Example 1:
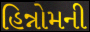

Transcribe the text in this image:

હિન્નોમની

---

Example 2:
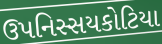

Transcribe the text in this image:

ઉપનિસ્સયકોટિયા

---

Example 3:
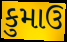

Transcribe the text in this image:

કુમાઉ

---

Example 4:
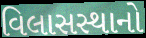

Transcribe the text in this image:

વિલાસસ્થાનો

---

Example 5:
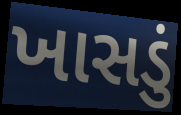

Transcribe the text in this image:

ખાસડું